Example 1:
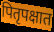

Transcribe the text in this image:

पितृपक्षात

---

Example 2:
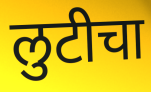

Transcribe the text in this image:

लुटीचा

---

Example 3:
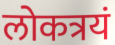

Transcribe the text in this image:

लोकत्रयं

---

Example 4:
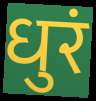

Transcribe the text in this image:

धुरं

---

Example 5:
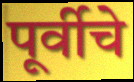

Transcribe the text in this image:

पूर्वीचे